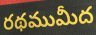
రథముమీద